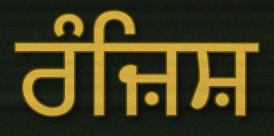
ਰੰਜ਼ਿਸ਼